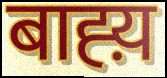
बाह्य़